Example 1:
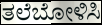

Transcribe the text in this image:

ತಲೆಬೋಳಿಸಿ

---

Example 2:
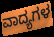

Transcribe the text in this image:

ವಾದ್ಯಗಳ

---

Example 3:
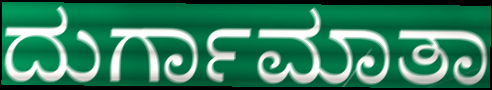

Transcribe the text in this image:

ದುರ್ಗಾಮಾತಾ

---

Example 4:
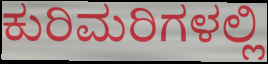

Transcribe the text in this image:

ಕುರಿಮರಿಗಳಲ್ಲಿ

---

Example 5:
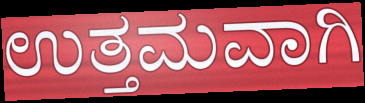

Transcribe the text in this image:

ಉತ್ತಮವಾಗಿ